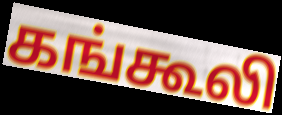
கங்கூலி